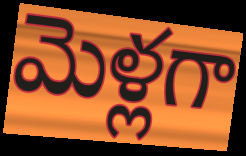
మెళ్లగా